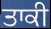
ਤਾਕੀ